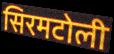
सिरमटोली